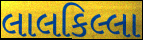
લાલકિલ્લા